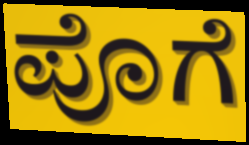
ಪೊಗೆ